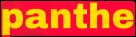
panthe